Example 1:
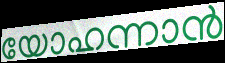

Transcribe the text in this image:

യോഹന്നാൻ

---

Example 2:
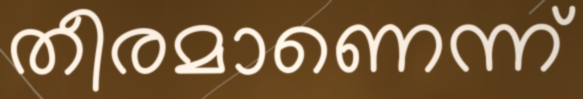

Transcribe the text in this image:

തീരമാണെന്ന്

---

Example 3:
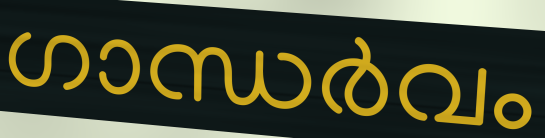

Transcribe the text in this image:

ഗാന്ധർവം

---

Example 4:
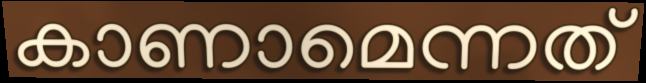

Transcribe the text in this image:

കാണാമെന്നത്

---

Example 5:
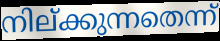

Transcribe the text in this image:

നില്ക്കുന്നതെന്ന്